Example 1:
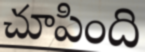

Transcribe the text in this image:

చూపింది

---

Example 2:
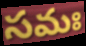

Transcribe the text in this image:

సమః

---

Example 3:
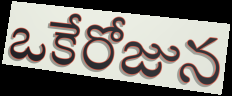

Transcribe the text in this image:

ఒకేరోజున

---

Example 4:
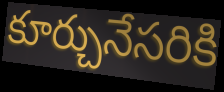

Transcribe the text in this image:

కూర్చునేసరికి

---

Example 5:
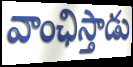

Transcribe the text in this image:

వాంఛిస్తాడు